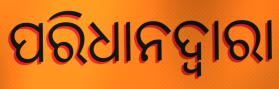
ପରିଧାନଦ୍ୱାରା